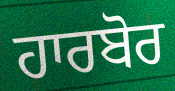
ਹਾਰਬੋਰ